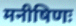
मनीषिणः